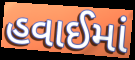
હવાઈમાં